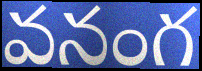
వనంగ